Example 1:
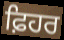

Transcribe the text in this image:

ਫ਼ਿਹਰ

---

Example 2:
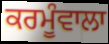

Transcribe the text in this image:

ਕਰਮੂੰਵਾਲਾ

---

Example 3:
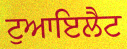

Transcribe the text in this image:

ਟੁਆਇਲੈਟ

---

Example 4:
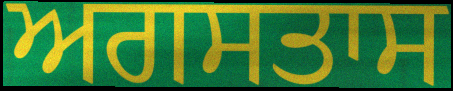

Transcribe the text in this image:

ਅਗਸਤਾਸ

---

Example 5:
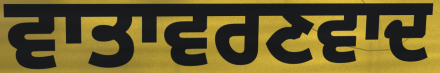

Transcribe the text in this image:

ਵਾਤਾਵਰਣਵਾਦ